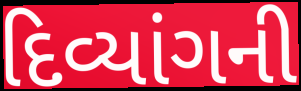
દિવ્યાંગની